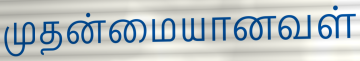
முதன்மையானவள்